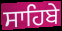
ਸਾਹਿਬੇ